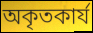
অকৃতকার্য